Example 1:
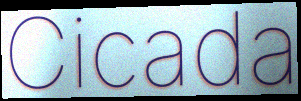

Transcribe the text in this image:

Cicada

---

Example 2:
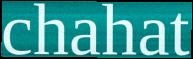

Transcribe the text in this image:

chahat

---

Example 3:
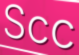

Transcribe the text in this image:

Scc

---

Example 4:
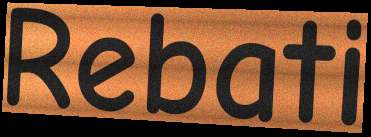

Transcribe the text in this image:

Rebati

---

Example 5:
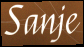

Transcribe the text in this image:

Sanje